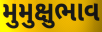
મુમુક્ષુભાવ